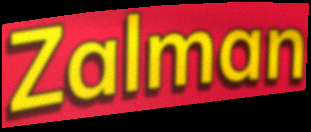
Zalman